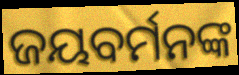
ଜୟବର୍ମନଙ୍କ